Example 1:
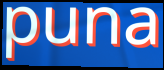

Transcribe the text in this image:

puna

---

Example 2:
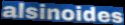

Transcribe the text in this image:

alsinoides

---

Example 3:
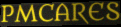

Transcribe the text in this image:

PMCARES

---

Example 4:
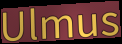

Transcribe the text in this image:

Ulmus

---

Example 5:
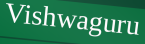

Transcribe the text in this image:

Vishwaguru